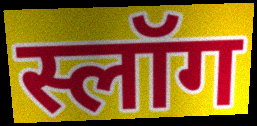
स्लॉग